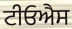
ਟੀਓਐਸ